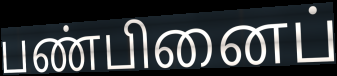
பண்பினைப்